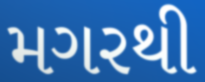
મગરથી